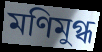
মণিমুগ্ধ